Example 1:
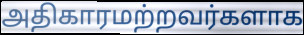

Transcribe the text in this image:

அதிகாரமற்றவர்களாக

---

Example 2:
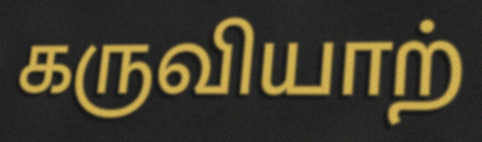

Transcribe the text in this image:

கருவியாற்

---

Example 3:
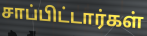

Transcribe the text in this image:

சாப்பிட்டார்கள்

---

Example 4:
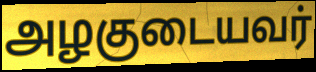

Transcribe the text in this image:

அழகுடையவர்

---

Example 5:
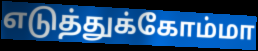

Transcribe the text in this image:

எடுத்துக்கோம்மா